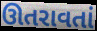
ઊતરાવતાં